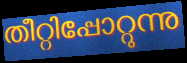
തീറ്റിപ്പോറ്റുന്നു